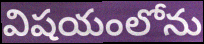
విషయంలోను